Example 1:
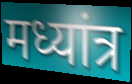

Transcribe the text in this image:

मध्यांत्र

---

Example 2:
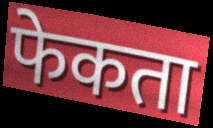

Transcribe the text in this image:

फेकता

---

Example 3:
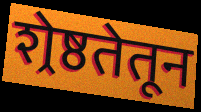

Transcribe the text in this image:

श्रेष्ठतेतून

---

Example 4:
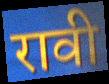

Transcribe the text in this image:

रावी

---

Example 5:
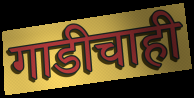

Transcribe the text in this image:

गाडीचाही